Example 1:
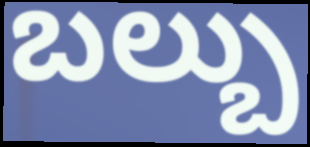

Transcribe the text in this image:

బల్బు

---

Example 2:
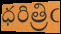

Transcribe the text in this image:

ధరిత్రిఁ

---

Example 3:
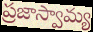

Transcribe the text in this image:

ప్రజాస్వామ్య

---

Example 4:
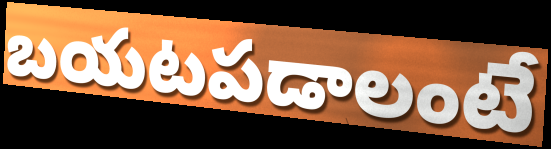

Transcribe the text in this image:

బయటపడాలంటే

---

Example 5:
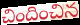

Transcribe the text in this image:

చిందించిన